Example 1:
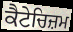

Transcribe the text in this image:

ਕੈਟੇਚਿਜ਼ਮ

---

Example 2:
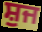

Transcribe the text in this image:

ਸ਼ੁਜ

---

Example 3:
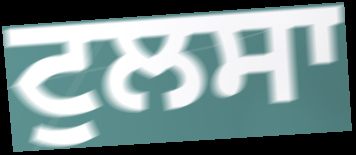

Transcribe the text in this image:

ਟੁਲਸਾ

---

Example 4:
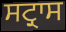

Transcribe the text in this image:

ਸਟ੍ਰਾਸ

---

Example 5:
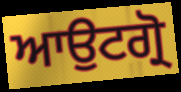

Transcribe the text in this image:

ਆਉਟਗ੍ਰੋ